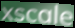
xscale